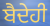
ਬੈਦੇਹੀ